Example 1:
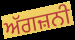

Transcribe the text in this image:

ਅੱਗਜ਼ਨੀ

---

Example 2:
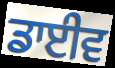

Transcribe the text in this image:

ਡਾਈਵ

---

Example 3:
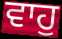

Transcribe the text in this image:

ਵਾਹੁ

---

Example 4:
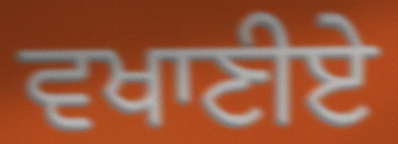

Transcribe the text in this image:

ਵਖਾਣੀਏ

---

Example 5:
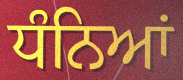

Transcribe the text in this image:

ਧੰਨਿਆਂ